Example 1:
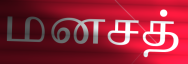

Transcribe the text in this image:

மனசத்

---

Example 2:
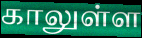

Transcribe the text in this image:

காலுள்ள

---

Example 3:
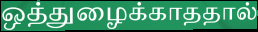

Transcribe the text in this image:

ஒத்துழைக்காததால்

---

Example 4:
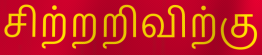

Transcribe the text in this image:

சிற்றறிவிற்கு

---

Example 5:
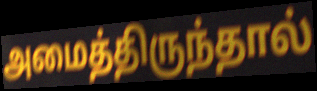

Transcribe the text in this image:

அமைத்திருந்தால்